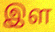
இள